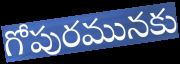
గోపురమునకు